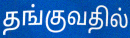
தங்குவதில்